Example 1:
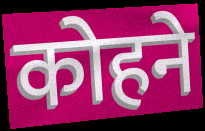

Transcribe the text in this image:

कोहने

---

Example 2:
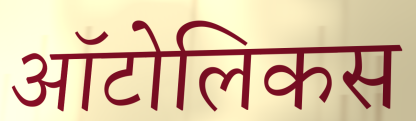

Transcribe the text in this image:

ऑटोलिकस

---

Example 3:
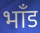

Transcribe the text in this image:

भाँड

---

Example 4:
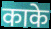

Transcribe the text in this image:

काके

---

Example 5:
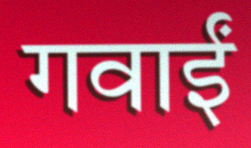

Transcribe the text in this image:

गवाईं